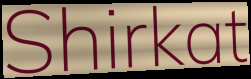
Shirkat